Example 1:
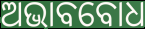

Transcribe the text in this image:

ଅଭାବବୋଧ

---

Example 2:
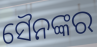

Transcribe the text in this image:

ସୈନଙ୍କର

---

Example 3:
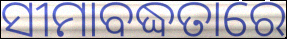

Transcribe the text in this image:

ସୀମାବଦ୍ଧତାରେ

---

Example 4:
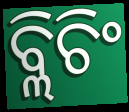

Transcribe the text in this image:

ବ୍ଲିଚିଂ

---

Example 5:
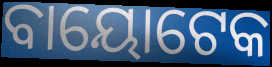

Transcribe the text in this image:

ବାୟୋଟେକ